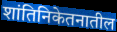
शांतिनिकेतनातील